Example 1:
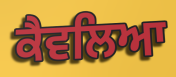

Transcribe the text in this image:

ਕੈਵਲਿਆ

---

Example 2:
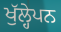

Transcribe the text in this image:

ਖੁੱਲ੍ਹੇਪਨ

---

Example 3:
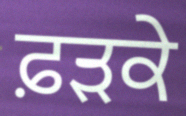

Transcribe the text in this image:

ਫ਼ਡ਼ਕੇ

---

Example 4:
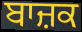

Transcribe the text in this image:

ਬਾਜ਼ਕ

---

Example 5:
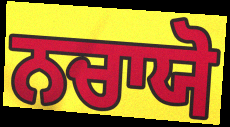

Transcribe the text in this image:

ਨਚਾਯੋ